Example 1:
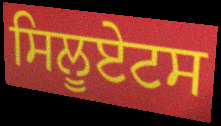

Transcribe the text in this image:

ਸਿਲੂਏਟਸ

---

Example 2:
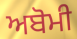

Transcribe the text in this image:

ਅਬੋਮੀ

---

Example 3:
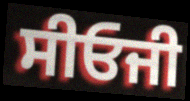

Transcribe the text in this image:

ਸੀਓਜੀ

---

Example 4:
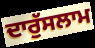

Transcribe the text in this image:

ਦਾਰੁੱਸਲਾਮ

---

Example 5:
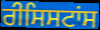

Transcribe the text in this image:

ਰੀਸਿਸਟਾਂਸ